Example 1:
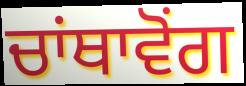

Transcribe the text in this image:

ਚਾਂਥਾਵੋਂਗ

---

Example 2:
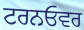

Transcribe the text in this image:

ਟਰਨਓਵਰ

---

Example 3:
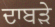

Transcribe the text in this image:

ਦਾਬੜੇ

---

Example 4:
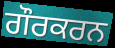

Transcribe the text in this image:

ਗੌਰਕਰਨ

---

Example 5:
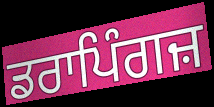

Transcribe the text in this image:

ਡਰਾਪਿੰਗਜ਼